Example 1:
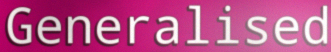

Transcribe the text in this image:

Generalised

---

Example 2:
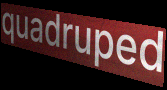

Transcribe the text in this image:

quadruped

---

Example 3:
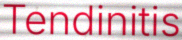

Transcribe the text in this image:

Tendinitis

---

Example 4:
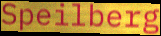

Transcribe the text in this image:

Speilberg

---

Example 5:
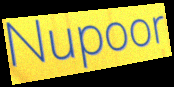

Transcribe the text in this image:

Nupoor